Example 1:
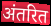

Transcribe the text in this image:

अंतरित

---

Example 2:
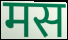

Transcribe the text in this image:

मस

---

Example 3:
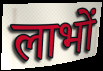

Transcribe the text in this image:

लाभों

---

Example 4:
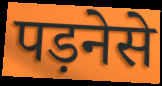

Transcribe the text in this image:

पड़नेसे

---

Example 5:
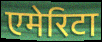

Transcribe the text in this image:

एमेरिटा